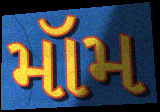
મૉમ